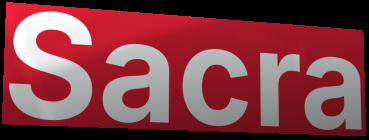
Sacra